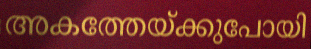
അകത്തേയ്ക്കുപോയി